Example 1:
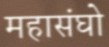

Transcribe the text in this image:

महासंघो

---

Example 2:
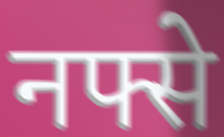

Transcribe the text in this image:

नफ्से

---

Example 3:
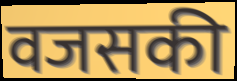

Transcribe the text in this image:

वजसकी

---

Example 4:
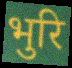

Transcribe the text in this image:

भुरि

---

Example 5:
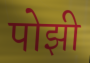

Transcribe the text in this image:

पोझी